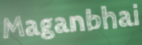
Maganbhai